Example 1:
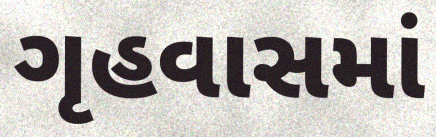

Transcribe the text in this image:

ગૃહવાસમાં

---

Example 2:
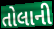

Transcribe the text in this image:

તોલાની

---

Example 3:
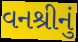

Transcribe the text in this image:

વનશ્રીનું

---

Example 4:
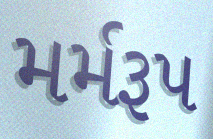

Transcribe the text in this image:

મર્મરૂપ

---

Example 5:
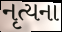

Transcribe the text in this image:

નૃત્યના